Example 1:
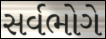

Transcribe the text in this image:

સર્વભોગે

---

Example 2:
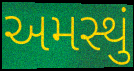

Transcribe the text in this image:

અમસ્થું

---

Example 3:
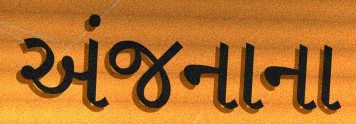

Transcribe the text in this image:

અંજનાના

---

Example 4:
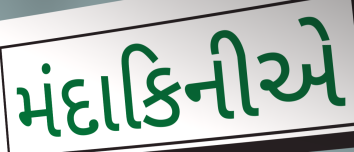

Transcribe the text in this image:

મંદાકિનીએ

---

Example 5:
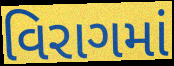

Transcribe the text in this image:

વિરાગમાં